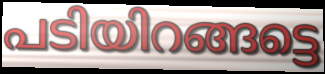
പടിയിറങ്ങട്ടെ